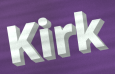
Kirk